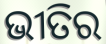
ଭୀତିର